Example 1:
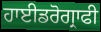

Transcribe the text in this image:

ਹਾਈਡਰੋਗ੍ਰਾਫੀ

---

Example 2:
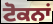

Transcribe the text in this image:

ਟੋਕਨਾਂ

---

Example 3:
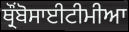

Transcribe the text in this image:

ਥ੍ਰੌਂਬੋਸਾਈਟੀਮੀਆ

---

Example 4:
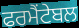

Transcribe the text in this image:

ਫਰਮੈਂਟੇਬਲ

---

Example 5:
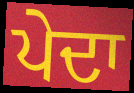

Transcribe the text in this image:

ਪੇਦਾ